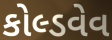
કોલ્ડવેવ